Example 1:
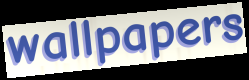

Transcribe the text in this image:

wallpapers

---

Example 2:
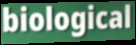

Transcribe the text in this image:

biological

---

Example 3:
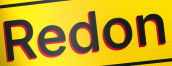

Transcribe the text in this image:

Redon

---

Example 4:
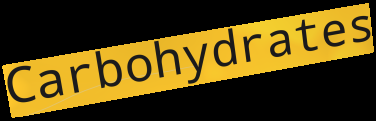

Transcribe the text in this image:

Carbohydrates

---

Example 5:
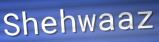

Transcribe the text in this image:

Shehwaaz